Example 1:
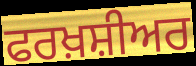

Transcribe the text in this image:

ਫਰਖ਼ਸ਼ੀਅਰ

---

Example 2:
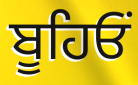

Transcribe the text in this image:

ਬੂਹਿਓਂ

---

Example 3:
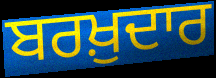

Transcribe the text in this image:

ਬਰਖ਼ੁਦਾਰ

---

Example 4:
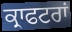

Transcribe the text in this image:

ਕ੍ਰਾਫਟਰਾਂ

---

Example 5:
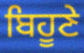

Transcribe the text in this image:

ਬਿਹੂਣੇ